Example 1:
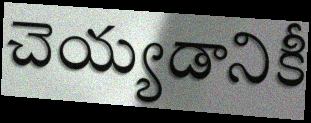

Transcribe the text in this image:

చెయ్యడానికీ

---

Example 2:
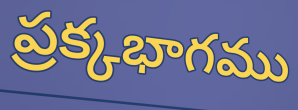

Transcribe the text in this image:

ప్రక్కభాగము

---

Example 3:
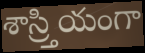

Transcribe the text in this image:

శాస్ర్తియంగా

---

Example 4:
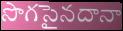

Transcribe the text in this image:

సొగసైనదానా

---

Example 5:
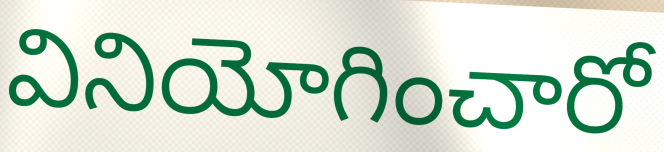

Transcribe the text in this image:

వినియోగించారో